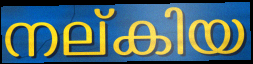
നല്‌കിയ